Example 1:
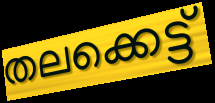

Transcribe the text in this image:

തലക്കെട്ട്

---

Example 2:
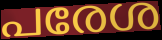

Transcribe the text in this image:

പരേശ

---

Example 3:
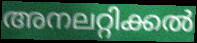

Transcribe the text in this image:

അനലറ്റിക്കൽ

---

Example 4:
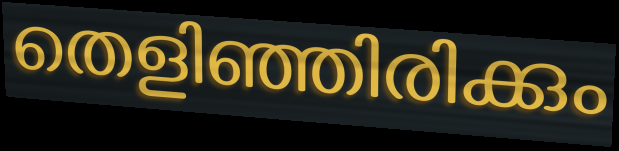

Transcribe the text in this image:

തെളിഞ്ഞിരിക്കും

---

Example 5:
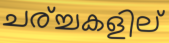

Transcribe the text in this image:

ചര്ച്ചകളില്